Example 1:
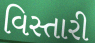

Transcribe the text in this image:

વિસ્તારી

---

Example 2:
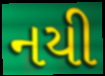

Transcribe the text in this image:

નયી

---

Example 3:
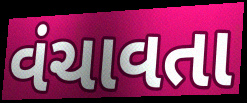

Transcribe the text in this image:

વંચાવતા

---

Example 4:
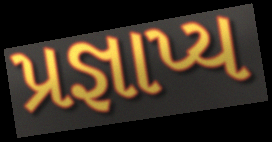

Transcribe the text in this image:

પ્રજ્ઞાપ્ય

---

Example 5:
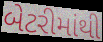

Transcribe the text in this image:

બેટરીમાંથી